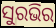
ସୁରଭିର